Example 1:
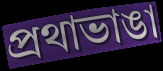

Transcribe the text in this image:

প্রথাভাঙা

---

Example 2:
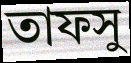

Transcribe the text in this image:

তাফসু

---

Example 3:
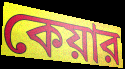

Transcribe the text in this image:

কেয়ার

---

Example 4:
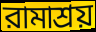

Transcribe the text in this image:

রামাশ্রয়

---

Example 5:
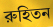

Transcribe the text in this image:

রুহিতন